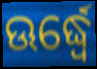
ଊର୍ଦ୍ଧ୍ୱେ